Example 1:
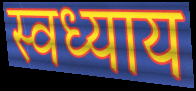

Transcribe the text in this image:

स्वध्याय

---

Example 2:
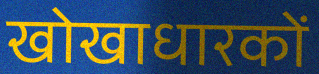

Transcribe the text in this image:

खोखाधारकों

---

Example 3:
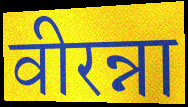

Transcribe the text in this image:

वीरन्ना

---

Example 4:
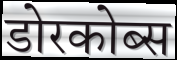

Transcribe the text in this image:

डोरकोब्स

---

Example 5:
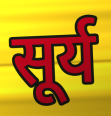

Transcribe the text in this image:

सूर्य